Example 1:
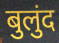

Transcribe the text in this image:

बुलुंद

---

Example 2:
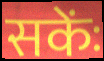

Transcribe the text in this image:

सकेंः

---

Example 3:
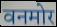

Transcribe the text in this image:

वनमोर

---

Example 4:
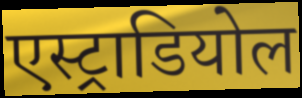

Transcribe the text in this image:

एस्ट्राडियोल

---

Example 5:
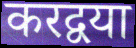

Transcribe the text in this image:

करद्वया